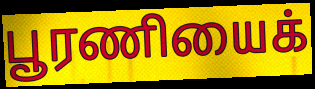
பூரணியைக்